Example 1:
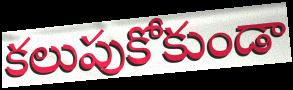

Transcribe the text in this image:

కలుపుకోకుండా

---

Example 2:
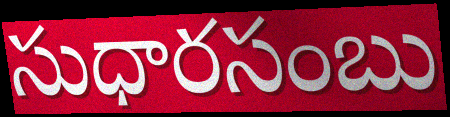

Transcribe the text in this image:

సుధారసంబు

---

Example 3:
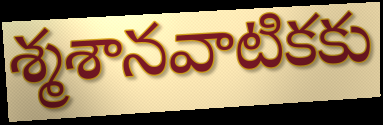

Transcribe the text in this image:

శ్మశానవాటికకు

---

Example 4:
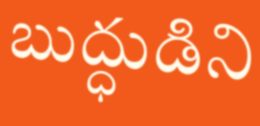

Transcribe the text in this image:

బుద్ధుడిని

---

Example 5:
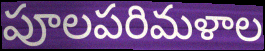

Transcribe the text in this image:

పూలపరిమళాల